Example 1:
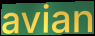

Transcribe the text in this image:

avian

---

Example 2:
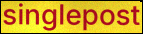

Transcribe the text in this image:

singlepost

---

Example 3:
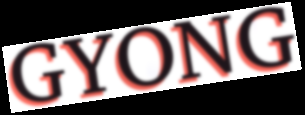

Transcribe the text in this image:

GYONG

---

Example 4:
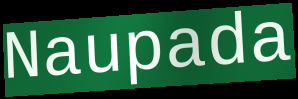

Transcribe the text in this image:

Naupada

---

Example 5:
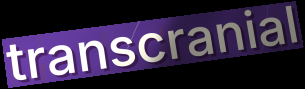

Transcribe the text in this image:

transcranial